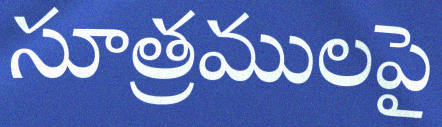
సూత్రములపై